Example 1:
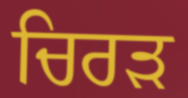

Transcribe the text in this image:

ਚਿਰੜ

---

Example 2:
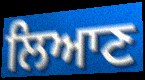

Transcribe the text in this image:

ਲਿਆਣ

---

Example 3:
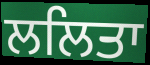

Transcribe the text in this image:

ਲਲਿਤਾ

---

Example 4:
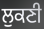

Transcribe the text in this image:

ਲੁਕਣੀ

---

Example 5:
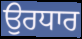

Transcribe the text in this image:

ਉਰਧਾਰ